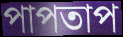
পাপতাপ